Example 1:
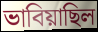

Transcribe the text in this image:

ভাবিয়াছিল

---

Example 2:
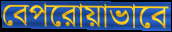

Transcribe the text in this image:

বেপরোয়াভাবে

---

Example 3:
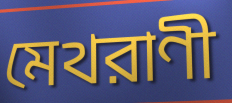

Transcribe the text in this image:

মেথরাণী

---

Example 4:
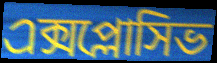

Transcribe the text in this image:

এক্সপ্লোসিভ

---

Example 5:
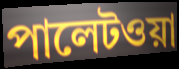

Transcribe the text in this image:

পালেটওয়া